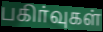
பகிர்வுகள்